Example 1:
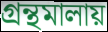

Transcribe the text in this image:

গ্রন্থমালায়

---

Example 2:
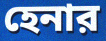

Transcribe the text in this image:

হেনার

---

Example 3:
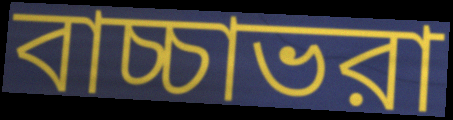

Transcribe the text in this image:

বাচ্চাভরা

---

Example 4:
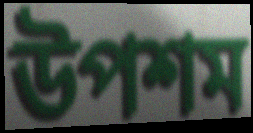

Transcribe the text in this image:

উপশম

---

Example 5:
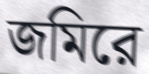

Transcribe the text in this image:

জমিরে